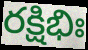
రక్షిభిః